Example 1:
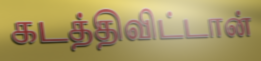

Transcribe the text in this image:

கடத்திவிட்டான்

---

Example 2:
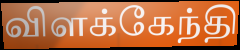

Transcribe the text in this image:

விளக்கேந்தி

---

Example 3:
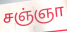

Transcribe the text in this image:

சஞ்ஞா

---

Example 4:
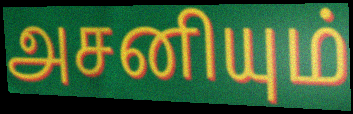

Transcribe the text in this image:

அசனியும்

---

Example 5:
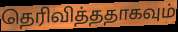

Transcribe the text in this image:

தெரிவித்ததாகவும்